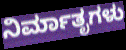
ನಿರ್ಮಾತೃಗಳು